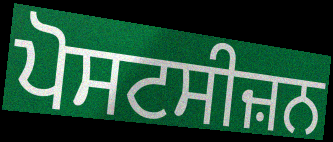
ਪੋਸਟਸੀਜ਼ਨ